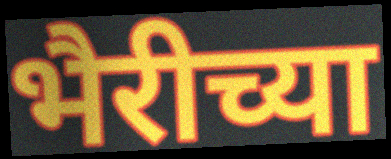
भैरीच्या